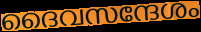
ദൈവസന്ദേശം